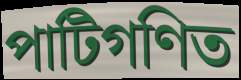
পাটিগণিত